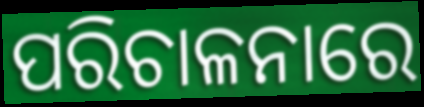
ପରିଚାଳନାରେ